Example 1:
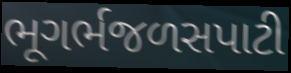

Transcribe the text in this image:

ભૂગર્ભજળસપાટી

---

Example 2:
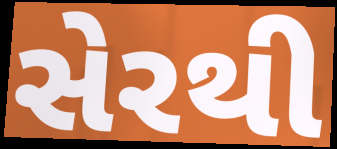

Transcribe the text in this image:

સેરથી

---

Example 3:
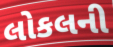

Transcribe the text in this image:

લોકલની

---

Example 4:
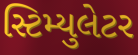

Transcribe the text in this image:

સ્ટિમ્યુલેટર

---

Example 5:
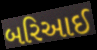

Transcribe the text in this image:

બરિઆઈ